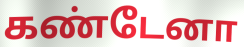
கண்டேனா